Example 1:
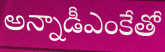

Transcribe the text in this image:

అన్నాడీఎంకేతో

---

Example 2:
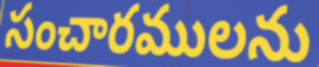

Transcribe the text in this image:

సంచారములను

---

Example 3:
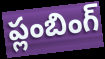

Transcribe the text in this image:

ప్లంబింగ్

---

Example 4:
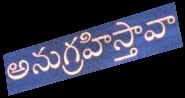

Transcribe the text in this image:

అనుగ్రహిస్తావా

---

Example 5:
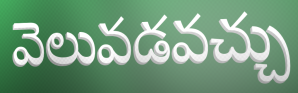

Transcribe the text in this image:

వెలువడవచ్చు